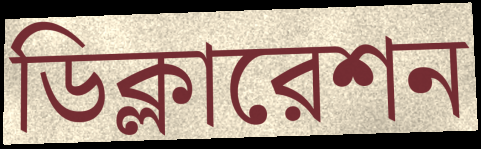
ডিক্লারেশন